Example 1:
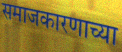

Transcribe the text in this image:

समाजकारणाच्या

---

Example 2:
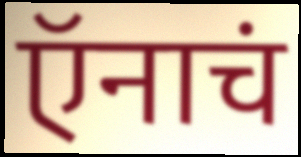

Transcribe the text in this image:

ऍनाचं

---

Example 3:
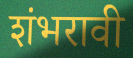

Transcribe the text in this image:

शंभरावी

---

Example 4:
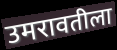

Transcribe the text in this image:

उमरावतीला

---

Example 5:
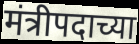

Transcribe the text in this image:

मंत्रीपदाच्या